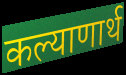
कल्याणार्थ